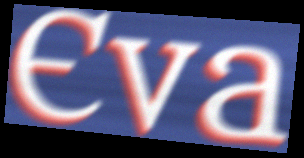
Eva